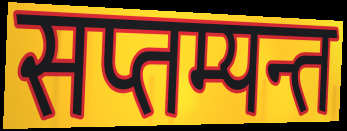
सप्तम्यन्त